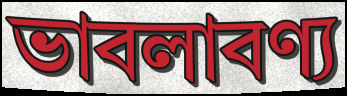
ভাবলাবণ্য